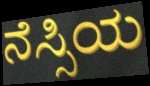
ನೆಸ್ಸಿಯ